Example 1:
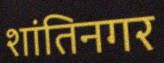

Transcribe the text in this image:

शांतिनगर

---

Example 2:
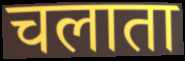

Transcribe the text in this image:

चलाता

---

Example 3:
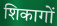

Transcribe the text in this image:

शिकागों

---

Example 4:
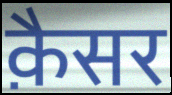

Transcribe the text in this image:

क़ैसर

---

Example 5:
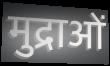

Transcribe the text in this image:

मुद्राओं